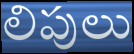
లిపులు